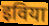
इविया